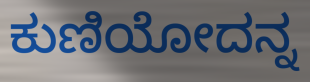
ಕುಣಿಯೋದನ್ನ